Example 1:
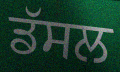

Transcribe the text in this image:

ਡੱਸਲ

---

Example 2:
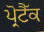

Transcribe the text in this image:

ਪ੍ਰੋਟੈੱਕ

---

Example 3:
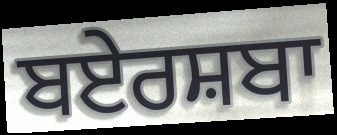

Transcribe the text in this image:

ਬਏਰਸ਼ਬਾ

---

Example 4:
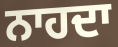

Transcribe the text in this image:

ਨਾਹਦਾ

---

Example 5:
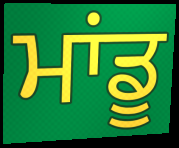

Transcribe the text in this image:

ਮਾਂਡੂ